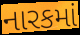
નારકમાં